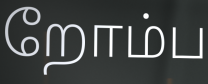
றோம்ப